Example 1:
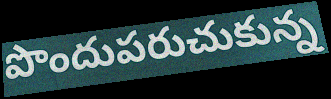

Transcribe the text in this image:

పొందుపరుచుకున్న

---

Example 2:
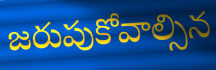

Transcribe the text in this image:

జరుపుకోవాల్సిన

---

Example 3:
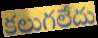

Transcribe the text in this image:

కలుగలేదు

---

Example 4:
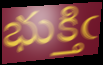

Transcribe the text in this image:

భుక్తిఁ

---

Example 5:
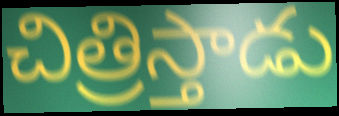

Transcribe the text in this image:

చిత్రిస్తాడు